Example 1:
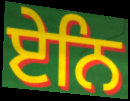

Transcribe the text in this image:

ਏਨਿ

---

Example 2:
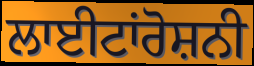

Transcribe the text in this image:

ਲਾਈਟਾਂਰੋਸ਼ਨੀ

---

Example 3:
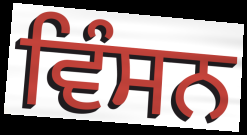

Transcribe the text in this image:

ਵਿੰਸਨ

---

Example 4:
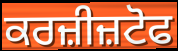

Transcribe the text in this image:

ਕਰਜ਼ੀਜ਼ਟੋਫ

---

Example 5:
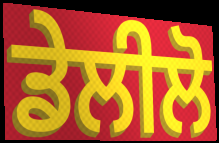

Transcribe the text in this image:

ਡੇਲੀਲੋ